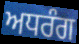
ਅਧਰੰਗ